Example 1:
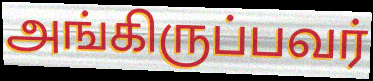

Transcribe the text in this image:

அங்கிருப்பவர்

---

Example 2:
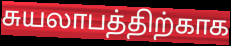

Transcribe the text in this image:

சுயலாபத்திற்காக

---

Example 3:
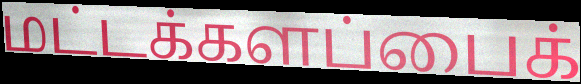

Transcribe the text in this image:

மட்டக்களப்பைக்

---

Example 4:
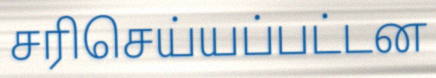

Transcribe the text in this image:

சரிசெய்யப்பட்டன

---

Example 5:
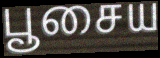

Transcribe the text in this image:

பூசைய